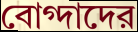
বোগ্দাদের